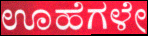
ಊಹೆಗಳೇ